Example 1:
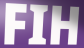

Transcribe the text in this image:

FIH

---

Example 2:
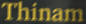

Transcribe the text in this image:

Thinam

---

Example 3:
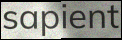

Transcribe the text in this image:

sapient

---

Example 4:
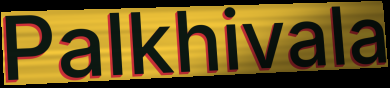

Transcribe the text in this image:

Palkhivala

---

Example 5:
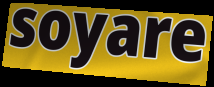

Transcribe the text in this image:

soyare